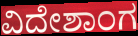
ವಿದೇಶಾಂಗ